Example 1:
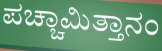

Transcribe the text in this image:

ಪಚ್ಚಾಮಿತ್ತಾನಂ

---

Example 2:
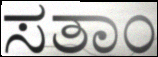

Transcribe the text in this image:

ಸತಾಂ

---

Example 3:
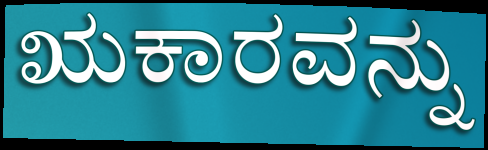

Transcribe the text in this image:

ಋಕಾರವನ್ನು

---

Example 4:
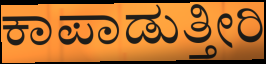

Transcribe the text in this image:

ಕಾಪಾಡುತ್ತೀರಿ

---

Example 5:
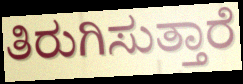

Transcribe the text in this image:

ತಿರುಗಿಸುತ್ತಾರೆ